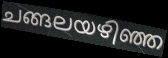
ചങ്ങലയഴിഞ്ഞ